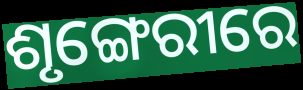
ଶୃଙ୍ଗେରୀରେ